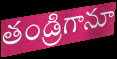
తండ్రిగానూ